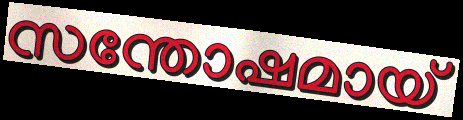
സന്തോഷമായ്